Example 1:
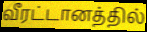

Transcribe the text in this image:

வீரட்டானத்தில்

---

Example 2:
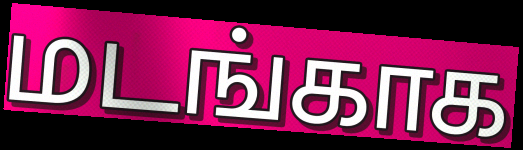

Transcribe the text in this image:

மடங்காக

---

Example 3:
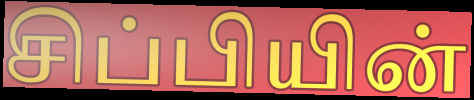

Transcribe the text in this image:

சிப்பியின்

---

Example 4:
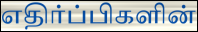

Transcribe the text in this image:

எதிர்ப்பிகளின்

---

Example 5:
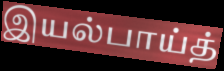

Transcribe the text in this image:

இயல்பாய்த்